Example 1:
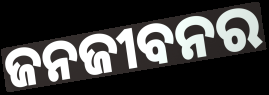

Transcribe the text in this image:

ଜନଜୀବନର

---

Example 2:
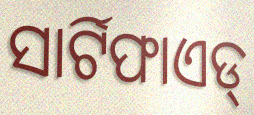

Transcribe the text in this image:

ସାର୍ଟିଫାଏଡ୍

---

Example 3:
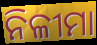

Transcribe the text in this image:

ନିଳୀମା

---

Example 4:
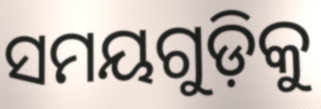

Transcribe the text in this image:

ସମୟଗୁଡ଼ିକୁ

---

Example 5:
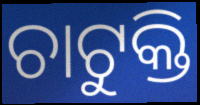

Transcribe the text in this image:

ଚାଟୁକ୍ତି